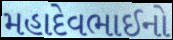
મહાદેવભાઈનો